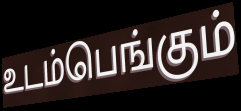
உடம்பெங்கும்